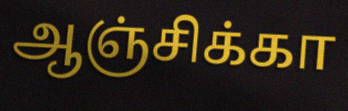
ஆஞ்சிக்கா